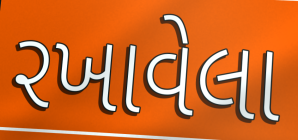
રખાવેલા